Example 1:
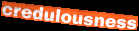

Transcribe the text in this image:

credulousness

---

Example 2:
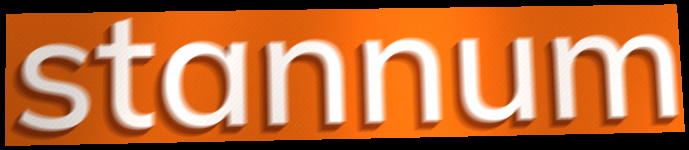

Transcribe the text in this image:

stannum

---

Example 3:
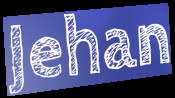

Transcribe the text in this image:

Jehan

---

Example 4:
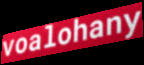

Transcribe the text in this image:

voalohany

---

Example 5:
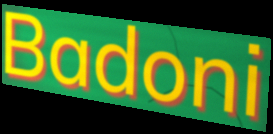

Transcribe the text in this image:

Badoni